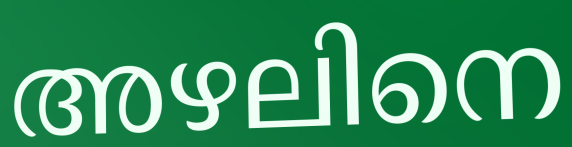
അഴലിനെ